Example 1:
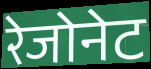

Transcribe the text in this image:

रेजोनेट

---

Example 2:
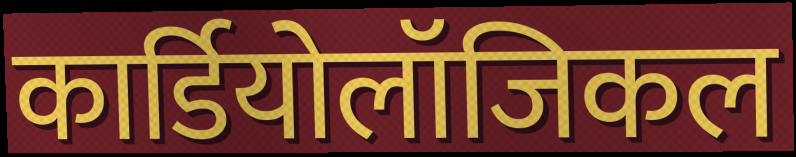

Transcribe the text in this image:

कार्डियोलॉजिकल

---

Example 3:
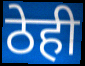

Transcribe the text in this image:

ठेही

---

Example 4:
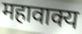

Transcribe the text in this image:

महावाक्य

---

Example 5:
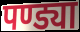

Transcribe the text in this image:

पण्ड्या